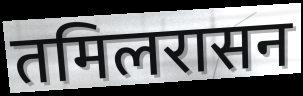
तमिलरासन